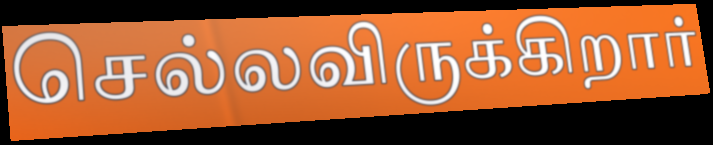
செல்லவிருக்கிறார்